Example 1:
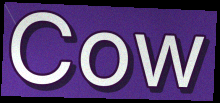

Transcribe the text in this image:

Cow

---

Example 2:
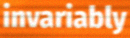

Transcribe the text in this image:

invariably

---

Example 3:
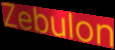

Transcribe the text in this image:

Zebulon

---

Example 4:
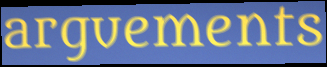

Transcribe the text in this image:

arguements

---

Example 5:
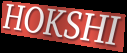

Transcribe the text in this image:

HOKSHI